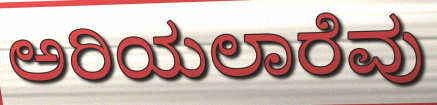
ಅರಿಯಲಾರೆವು